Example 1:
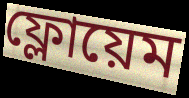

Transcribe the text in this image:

ফ্লোয়েম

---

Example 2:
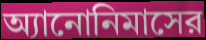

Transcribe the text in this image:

অ্যানোনিমাসের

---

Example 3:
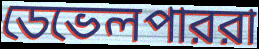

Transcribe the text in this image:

ডেভেলপাররা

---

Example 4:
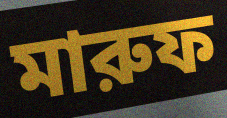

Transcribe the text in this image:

মারুফ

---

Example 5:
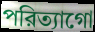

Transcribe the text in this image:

পরিত্যাগো